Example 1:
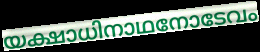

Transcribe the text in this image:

യക്ഷാധിനാഥനോടേവം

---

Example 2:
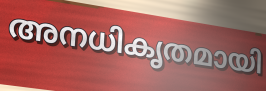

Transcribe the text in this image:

അനധികൃതമായി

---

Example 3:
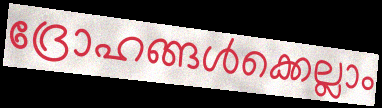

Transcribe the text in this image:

ദ്രോഹങ്ങൾക്കെല്ലാം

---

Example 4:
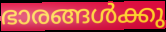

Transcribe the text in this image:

ഭാരങ്ങൾക്കു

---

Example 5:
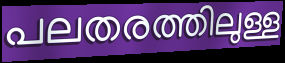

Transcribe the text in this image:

പലതരത്തിലുള്ള